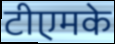
टीएमके